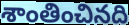
శాంతించినది